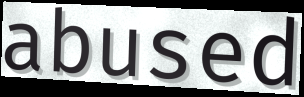
abused